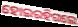
ହୋଇରହିଗଲେ